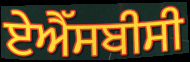
ਏਐੱਸਬੀਸੀ